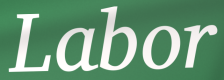
Labor